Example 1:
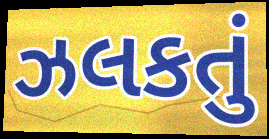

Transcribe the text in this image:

ઝલકતું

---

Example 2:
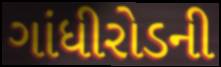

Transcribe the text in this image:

ગાંધીરોડની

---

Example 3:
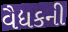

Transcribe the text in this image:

વૈદ્યકની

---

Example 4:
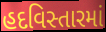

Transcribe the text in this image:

હદવિસ્તારમાં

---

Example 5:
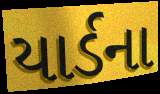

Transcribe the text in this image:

યાર્ડના